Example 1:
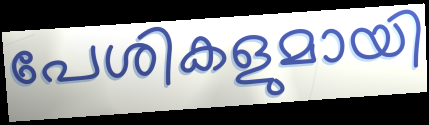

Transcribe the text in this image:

പേശികളുമായി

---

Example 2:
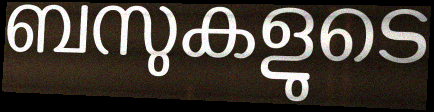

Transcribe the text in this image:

ബസുകളുടെ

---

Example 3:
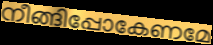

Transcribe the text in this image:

നീങ്ങിപ്പോകേണമേ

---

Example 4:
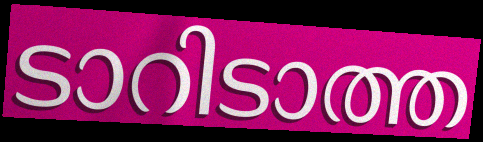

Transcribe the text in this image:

ടാറിടാത്ത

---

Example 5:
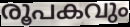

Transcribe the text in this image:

രൂപകവും